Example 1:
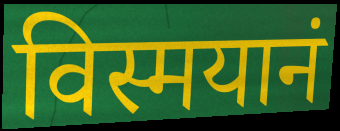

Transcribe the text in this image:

विस्मयानं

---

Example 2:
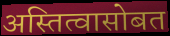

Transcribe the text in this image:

अस्तित्वासोबत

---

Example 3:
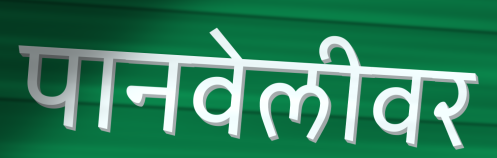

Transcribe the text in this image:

पानवेलीवर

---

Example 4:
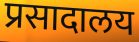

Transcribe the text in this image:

प्रसादालय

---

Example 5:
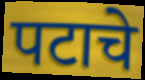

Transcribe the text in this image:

पटाचे